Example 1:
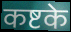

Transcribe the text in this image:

कष्टके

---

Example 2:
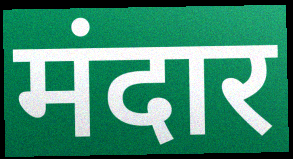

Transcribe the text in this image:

मंदार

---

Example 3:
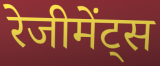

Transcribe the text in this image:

रेजीमेंट्स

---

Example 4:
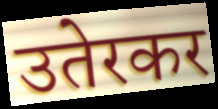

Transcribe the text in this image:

उतेरकर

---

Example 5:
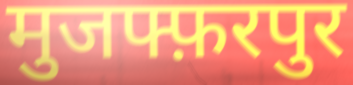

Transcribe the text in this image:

मुजफ्फ़रपुर